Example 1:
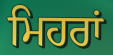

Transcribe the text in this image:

ਮਿਹਰਾਂ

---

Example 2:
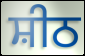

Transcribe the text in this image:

ਸ਼ੀਠ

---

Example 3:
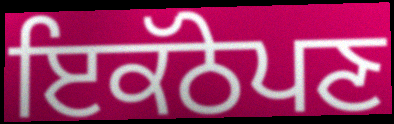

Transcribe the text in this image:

ਇਕੱਠੇਪਣ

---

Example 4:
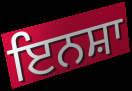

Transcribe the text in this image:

ਇਨਸ਼ਾ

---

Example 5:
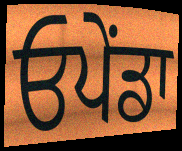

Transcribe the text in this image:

ਓਪੇਂਡਾ